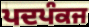
ਪਦਪੰਕਜ